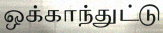
ஒக்காந்துட்டு